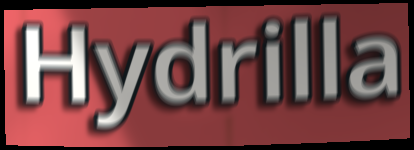
Hydrilla